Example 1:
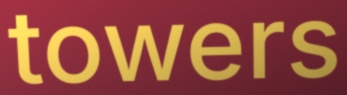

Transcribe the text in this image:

towers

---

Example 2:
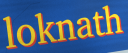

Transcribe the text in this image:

loknath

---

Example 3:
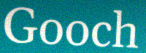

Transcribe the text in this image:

Gooch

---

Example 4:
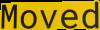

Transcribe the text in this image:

Moved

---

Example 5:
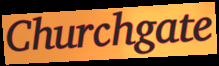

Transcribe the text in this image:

Churchgate